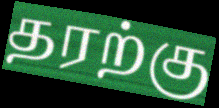
தரற்கு